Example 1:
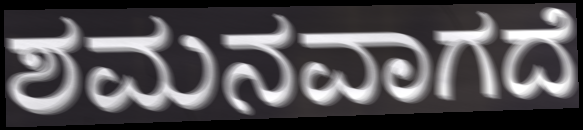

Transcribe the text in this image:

ಶಮನವಾಗದೆ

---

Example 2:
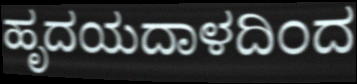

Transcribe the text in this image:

ಹೃದಯದಾಳದಿಂದ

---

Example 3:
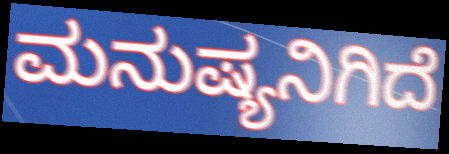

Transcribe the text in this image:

ಮನುಷ್ಯನಿಗಿದೆ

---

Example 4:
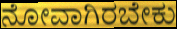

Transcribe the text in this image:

ನೋವಾಗಿರಬೇಕು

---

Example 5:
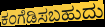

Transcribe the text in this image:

ಕಂಗೆಡಿಸಬಹುದು